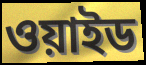
ওয়াইড